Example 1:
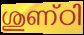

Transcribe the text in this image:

ശുണ്‌ഠി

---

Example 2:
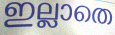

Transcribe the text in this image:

ഇല്ലാതെ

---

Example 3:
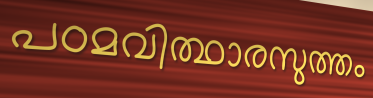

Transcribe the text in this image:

പഠമവിത്ഥാരസുത്തം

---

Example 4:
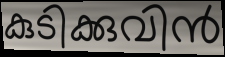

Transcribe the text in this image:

കുടിക്കുവിൻ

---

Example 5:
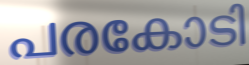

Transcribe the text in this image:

പരകോടി